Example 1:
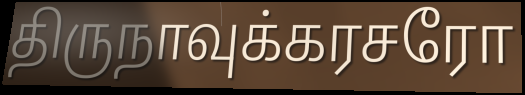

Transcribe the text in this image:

திருநாவுக்கரசரோ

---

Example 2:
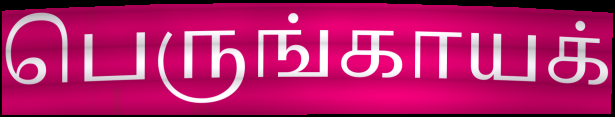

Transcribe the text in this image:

பெருங்காயக்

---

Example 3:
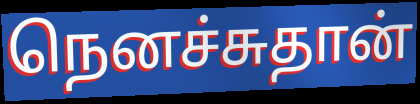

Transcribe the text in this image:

நெனச்சுதான்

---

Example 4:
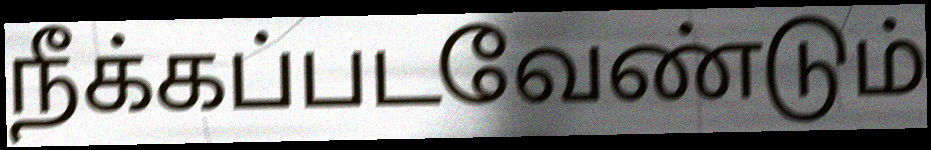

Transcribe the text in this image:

நீக்கப்படவேண்டும்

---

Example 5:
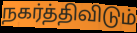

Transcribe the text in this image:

நகர்த்திவிடும்